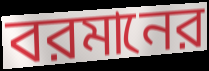
বরমানের